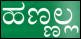
ಹಣ್ಣಲ್ಲ